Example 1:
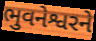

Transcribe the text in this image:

ભુવનેશ્વરને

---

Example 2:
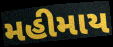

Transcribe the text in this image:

મહીમાય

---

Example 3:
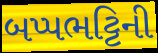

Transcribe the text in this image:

બપ્પભટ્ટિની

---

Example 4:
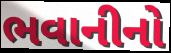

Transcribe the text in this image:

ભવાનીનો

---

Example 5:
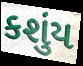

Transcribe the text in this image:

કશુંય